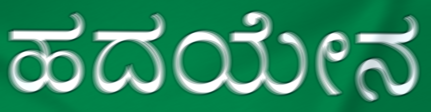
ಹದಯೇನ